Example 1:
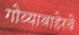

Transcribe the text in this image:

गोव्याबाहेरचे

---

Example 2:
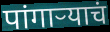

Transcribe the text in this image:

पांगाऱ्याचं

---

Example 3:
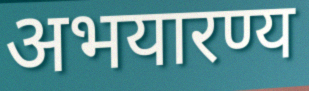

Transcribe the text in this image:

अभयारण्य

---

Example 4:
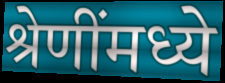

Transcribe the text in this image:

श्रेणींमध्ये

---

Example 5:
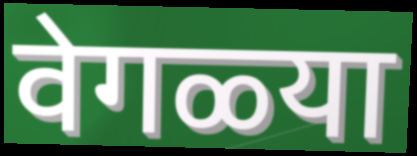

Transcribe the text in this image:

वेगळ्या